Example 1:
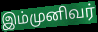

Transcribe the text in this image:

இம்முனிவர்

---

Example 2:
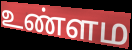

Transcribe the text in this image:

உண்ளம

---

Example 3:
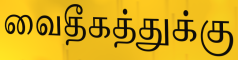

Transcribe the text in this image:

வைதீகத்துக்கு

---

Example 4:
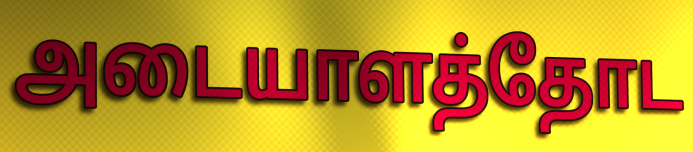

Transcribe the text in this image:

அடையாளத்தோட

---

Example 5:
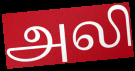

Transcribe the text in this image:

அலி